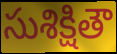
సుశిక్షితౌ